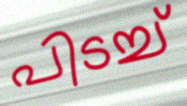
പിടച്ച്